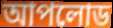
আপলোড